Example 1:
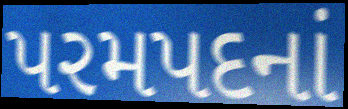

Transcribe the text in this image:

પરમપદનાં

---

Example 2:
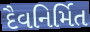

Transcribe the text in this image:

દૈવનિર્મિત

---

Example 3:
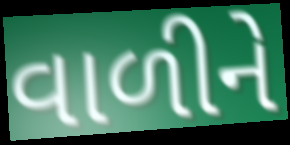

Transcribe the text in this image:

વાળીને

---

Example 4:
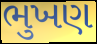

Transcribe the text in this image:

ભુખણ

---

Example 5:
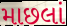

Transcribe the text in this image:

માછલાં